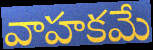
వాహకమే